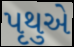
પૃથુએ